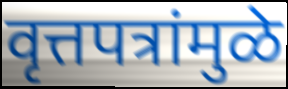
वृत्तपत्रांमुळे